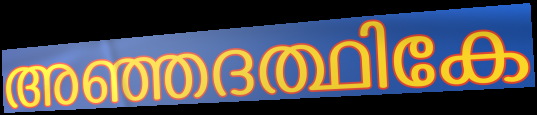
അഞ്ഞദത്ഥികേ